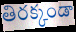
తిరక్కండా